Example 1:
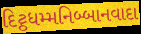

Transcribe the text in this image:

દિટ્ઠધમ્મનિબ્બાનવાદા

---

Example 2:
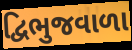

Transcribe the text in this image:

દ્વિભુજવાળા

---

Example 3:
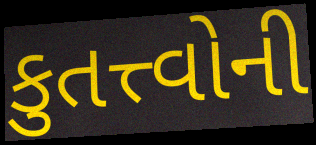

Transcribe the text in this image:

કુતત્ત્વોની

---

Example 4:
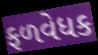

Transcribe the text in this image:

ફળવેધક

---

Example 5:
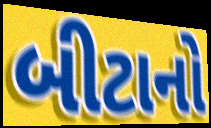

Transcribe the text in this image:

બીટાનો